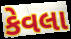
કેવલા